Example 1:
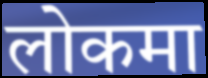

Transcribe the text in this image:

लोकमा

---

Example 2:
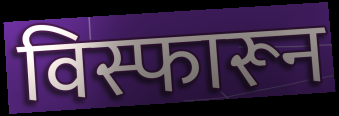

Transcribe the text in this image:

विस्फारून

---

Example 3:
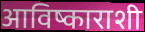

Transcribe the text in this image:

आविष्काराशी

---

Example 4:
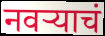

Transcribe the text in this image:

नवर्‍याचं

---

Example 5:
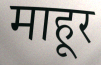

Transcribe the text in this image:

माहूर